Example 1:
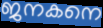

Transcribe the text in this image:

ജനകനെ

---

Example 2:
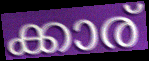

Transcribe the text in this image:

ക്കാര്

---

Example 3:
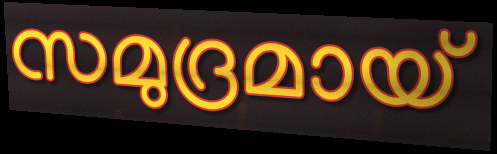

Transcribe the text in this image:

സമുദ്രമായ്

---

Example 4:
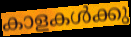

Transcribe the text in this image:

കാളകൾക്കു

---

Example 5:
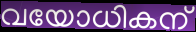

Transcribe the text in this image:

വയോധികന്